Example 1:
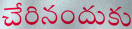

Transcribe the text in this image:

చేరినందుకు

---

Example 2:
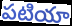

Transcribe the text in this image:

పటియా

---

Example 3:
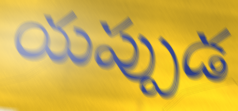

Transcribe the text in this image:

యప్పుడ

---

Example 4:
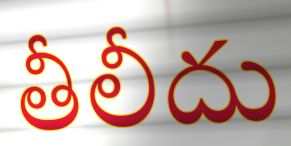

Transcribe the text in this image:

తీలీదు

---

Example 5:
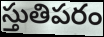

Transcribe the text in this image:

స్తుతిపరం